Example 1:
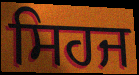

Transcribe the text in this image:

ਸਿਹਜ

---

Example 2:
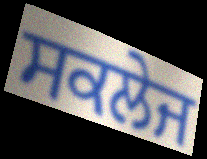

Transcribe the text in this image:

ਸਕਲੇਜ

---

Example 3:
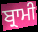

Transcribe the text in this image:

ਬ੍ਰਾਮੀ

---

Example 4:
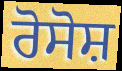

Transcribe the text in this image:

ਰੋਸੋਸ਼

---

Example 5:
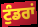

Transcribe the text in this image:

ਟੁੰਡਰਾਂ